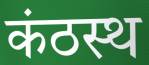
कंठस्थ